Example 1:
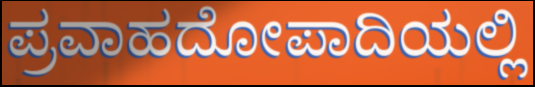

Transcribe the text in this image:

ಪ್ರವಾಹದೋಪಾದಿಯಲ್ಲಿ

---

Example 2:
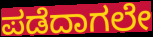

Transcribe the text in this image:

ಪಡೆದಾಗಲೇ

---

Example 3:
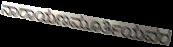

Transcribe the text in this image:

ನಾರಾಯಣಮೂರ್ತಿಯವರ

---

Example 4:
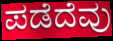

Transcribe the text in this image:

ಪಡೆದೆವು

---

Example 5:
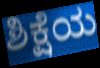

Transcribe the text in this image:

ಶಿಕ್ಷೆಯ